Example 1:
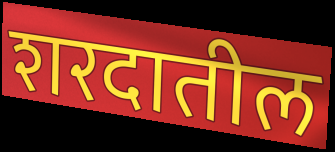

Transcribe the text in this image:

शरदातील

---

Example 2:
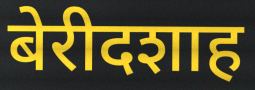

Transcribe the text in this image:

बेरीदशाह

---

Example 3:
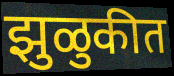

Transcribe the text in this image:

झुळुकीत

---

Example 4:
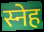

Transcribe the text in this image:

स्नेह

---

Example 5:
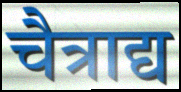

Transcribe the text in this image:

चैत्राद्य